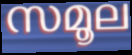
സമൂല